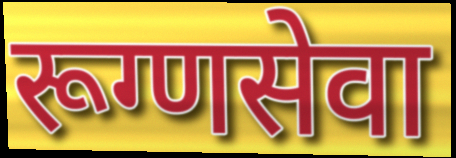
रूग्णसेवा